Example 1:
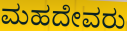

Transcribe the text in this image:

ಮಹದೇವರು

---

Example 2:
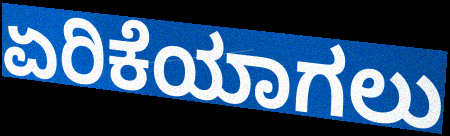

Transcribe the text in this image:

ಏರಿಕೆಯಾಗಲು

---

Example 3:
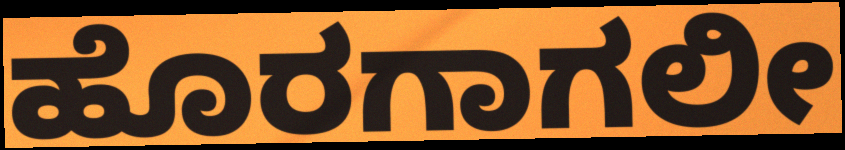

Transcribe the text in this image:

ಹೊರಗಾಗಲೀ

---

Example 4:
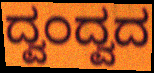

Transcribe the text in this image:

ದ್ವಂದ್ವದ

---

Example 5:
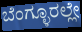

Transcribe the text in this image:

ಬೆಂಗ್ಳೂರಲ್ಲೇ